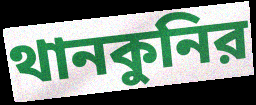
থানকুনির